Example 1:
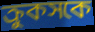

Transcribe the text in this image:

ক্রুকসকে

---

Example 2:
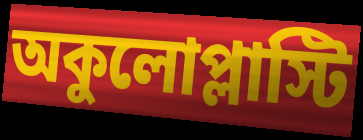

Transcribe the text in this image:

অকুলোপ্লাস্টি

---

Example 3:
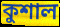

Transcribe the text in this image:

কুশাল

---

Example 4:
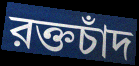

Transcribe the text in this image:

রক্তচাঁদ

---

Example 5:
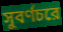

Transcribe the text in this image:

সুবর্ণচরে